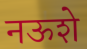
नऊशे